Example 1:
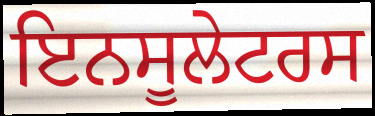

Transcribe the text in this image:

ਇਨਸੂਲੇਟਰਸ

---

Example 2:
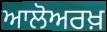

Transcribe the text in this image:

ਆਲੋਅਰਖ਼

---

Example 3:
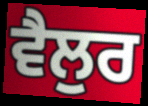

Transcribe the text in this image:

ਵੈਲੁਰ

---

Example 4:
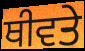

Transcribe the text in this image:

ਥੀਵਤੇ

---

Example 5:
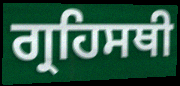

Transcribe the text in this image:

ਗ੍ਰਹਿਸਥੀ